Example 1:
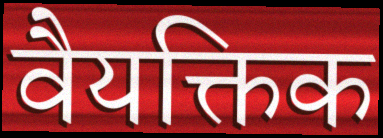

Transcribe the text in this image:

वैयक्तिक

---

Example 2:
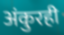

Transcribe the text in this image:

अंकुरही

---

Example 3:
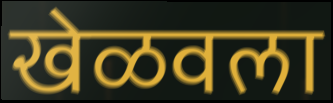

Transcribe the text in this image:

खेळवला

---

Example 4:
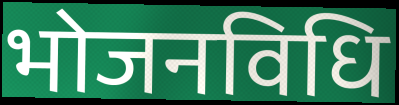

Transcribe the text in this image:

भोजनविधि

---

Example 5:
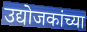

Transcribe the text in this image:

उद्योजकांच्या